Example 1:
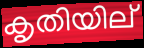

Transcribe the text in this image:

കൃതിയില്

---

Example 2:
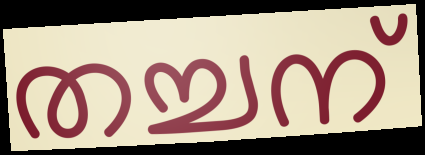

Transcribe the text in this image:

തച്ചന്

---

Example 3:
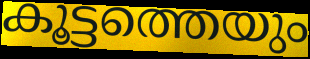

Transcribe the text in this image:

കൂട്ടത്തെയും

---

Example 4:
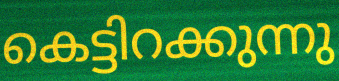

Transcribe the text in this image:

കെട്ടിറക്കുന്നു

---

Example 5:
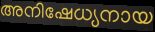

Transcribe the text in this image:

അനിഷേധ്യനായ